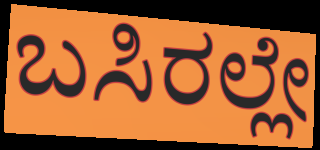
ಬಸಿರಲ್ಲೇ